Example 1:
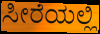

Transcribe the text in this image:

ಸೀರೆಯಲ್ಲಿ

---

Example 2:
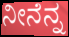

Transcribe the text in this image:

ನೀನೆನ್ನ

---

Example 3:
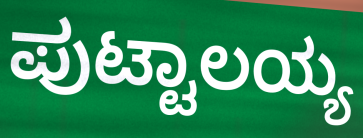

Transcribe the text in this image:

ಪುಟ್ಟಾಲಯ್ಯ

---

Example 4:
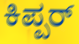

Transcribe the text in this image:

ಕಿಪ್ಪರ್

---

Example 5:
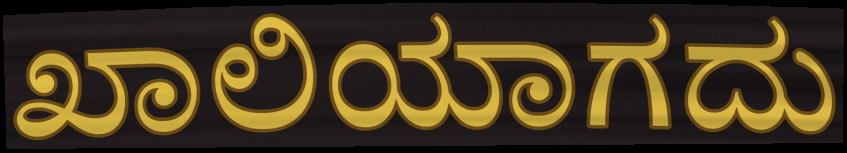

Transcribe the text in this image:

ಖಾಲಿಯಾಗದು